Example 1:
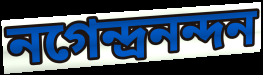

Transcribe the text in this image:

নগেন্দ্রনন্দন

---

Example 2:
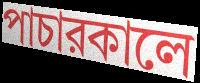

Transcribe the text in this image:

পাচারকালে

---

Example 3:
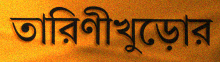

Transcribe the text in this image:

তারিণীখুড়োর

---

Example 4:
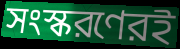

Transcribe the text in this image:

সংস্করণেরই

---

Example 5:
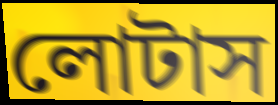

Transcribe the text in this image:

লোটাস